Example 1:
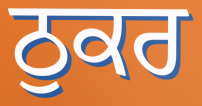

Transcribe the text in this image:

ਠੁਕਰ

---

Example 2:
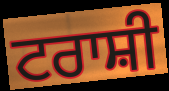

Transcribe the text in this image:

ਟਰਾਸ਼ੀ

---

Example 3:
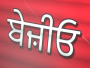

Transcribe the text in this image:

ਬੇਜ਼ੀਓ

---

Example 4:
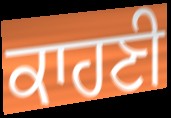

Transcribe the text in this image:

ਕਾਹਣੀ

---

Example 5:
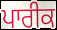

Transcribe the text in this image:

ਪਾਰੀਕ